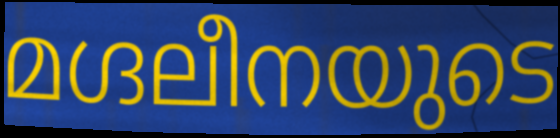
മഗ്ദലീനയുടെ